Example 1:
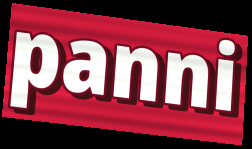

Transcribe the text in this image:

panni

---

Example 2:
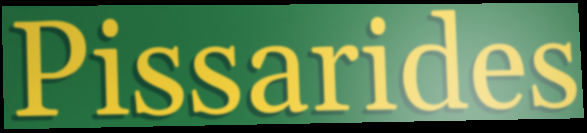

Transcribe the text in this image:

Pissarides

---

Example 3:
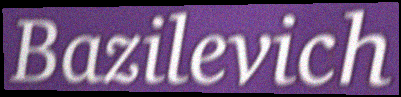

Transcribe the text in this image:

Bazilevich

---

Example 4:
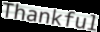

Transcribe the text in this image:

Thankful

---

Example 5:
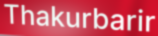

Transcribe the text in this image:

Thakurbarir